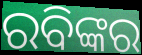
ରବିଙ୍କର